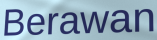
Berawan